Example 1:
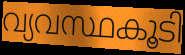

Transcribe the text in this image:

വ്യവസ്ഥകൂടി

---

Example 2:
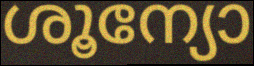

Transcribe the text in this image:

ശൂന്യോ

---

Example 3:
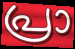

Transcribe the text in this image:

പ്രാ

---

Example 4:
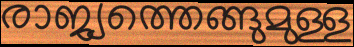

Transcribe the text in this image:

രാജ്യത്തെങ്ങുമുള്ള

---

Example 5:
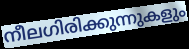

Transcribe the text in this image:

നീലഗിരിക്കുന്നുകളും